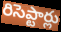
రిసెప్టార్లు